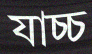
যাচ্চ